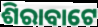
ଶିରାବାଟେ